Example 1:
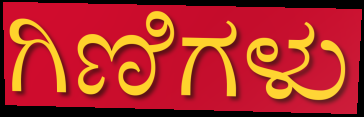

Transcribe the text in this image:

ಗಿಣಿಗಳು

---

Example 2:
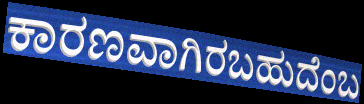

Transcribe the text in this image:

ಕಾರಣವಾಗಿರಬಹುದೆಂಬ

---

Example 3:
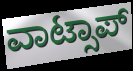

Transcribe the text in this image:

ವಾಟ್ಸಾಪ್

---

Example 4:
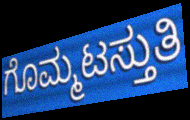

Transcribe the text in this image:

ಗೊಮ್ಮಟಸ್ತುತಿ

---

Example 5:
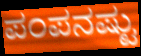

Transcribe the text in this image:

ಪಂಪನಷ್ಟು